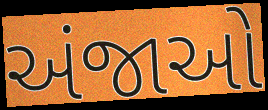
અંજાઓ